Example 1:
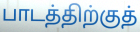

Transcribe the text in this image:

பாடத்திற்குத்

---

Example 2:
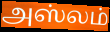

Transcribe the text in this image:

அஸ்லம்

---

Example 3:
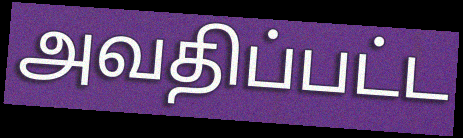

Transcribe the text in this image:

அவதிப்பட்ட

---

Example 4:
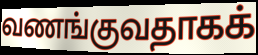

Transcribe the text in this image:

வணங்குவதாகக்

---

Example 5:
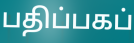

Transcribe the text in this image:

பதிப்பகப்